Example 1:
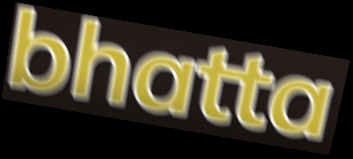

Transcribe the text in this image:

bhatta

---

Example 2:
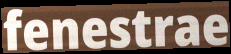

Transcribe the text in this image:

fenestrae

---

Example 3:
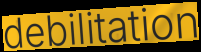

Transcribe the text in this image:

debilitation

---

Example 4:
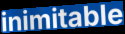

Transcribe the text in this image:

inimitable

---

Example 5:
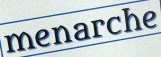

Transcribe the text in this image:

menarche